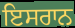
ਇਸਰਾਨ